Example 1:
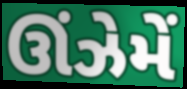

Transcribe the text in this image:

ઊંઝેમેં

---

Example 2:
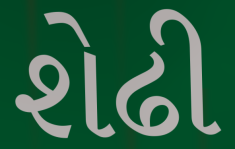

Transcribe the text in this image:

શેઢી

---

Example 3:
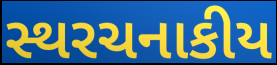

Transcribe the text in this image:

સ્થરચનાકીય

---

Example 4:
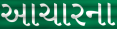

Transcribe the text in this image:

આચારના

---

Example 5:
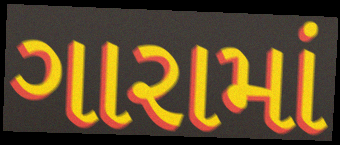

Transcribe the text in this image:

ગારામાં